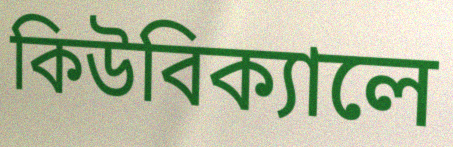
কিউবিক্যালে